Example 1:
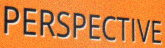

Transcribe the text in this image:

PERSPECTIVE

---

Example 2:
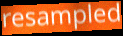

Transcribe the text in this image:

resampled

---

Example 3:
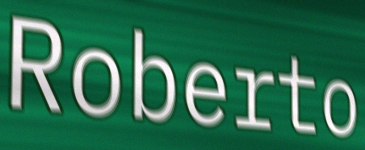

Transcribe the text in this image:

Roberto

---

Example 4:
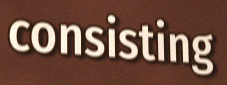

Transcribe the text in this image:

consisting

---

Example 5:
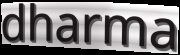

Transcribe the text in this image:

dharma